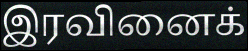
இரவினைக்